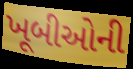
ખૂબીઓની